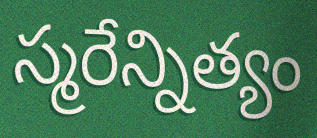
స్మరేన్నిత్యం